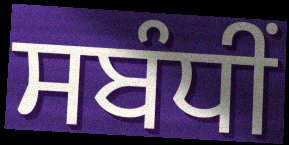
ਸਬੰਧੀਂ